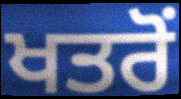
ਖਤਰੋਂ